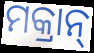
ମକ୍ରାନ୍